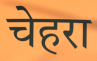
चेहरा